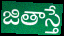
జితాస్తే